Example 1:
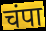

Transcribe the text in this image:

चंपा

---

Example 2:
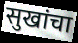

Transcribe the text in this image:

सुखांचा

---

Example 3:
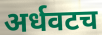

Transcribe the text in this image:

अर्धवटच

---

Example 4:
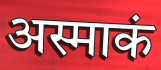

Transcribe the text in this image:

अस्माकं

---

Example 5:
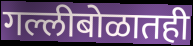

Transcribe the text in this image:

गल्लीबोळातही